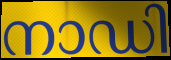
നാഡി